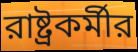
রাষ্ট্রকর্মীর